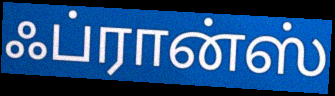
ஃப்ரான்ஸ்